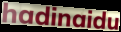
hadinaidu